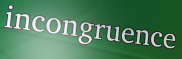
incongruence